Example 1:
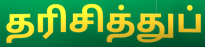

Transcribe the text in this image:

தரிசித்துப்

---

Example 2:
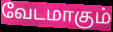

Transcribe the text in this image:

வேடமாகும்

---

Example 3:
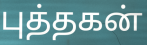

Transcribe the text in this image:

புத்தகன்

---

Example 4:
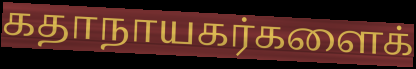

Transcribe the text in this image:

கதாநாயகர்களைக்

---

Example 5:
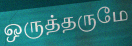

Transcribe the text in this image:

ஒருத்தருமே